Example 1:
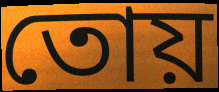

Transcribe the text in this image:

তোয়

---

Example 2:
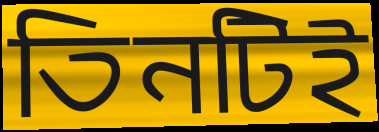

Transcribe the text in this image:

তিনটিই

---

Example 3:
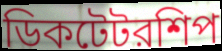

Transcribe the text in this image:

ডিকটেটরশিপ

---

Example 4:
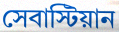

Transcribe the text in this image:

সেবাস্টিয়ান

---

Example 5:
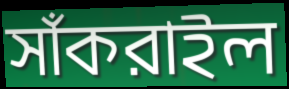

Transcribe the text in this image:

সাঁকরাইল